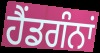
ਹੈਂਡਗੰਨਾਂ